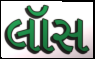
લૉસ